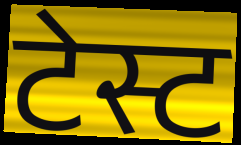
टेस्‍ट